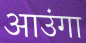
आउंगा